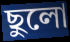
ছুলো